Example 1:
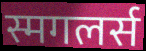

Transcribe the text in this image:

स्‍मगलर्स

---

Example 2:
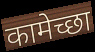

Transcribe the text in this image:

कामेच्छा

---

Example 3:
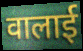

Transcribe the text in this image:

वालाई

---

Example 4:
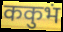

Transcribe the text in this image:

ककुभं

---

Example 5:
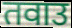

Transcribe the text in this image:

तवाउ